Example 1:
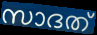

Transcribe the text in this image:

സാദത്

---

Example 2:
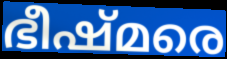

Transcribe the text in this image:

ഭീഷ്മരെ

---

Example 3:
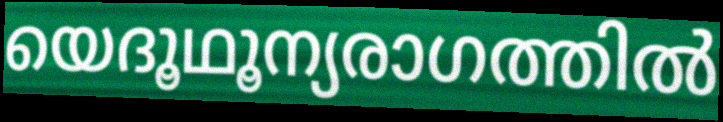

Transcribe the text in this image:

യെദൂഥൂന്യരാഗത്തിൽ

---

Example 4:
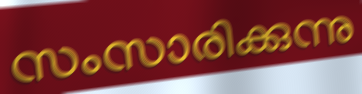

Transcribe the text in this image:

സംസാരിക്കുന്നു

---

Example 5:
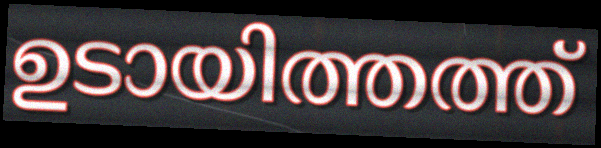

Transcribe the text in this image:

ഉടായിത്തത്ത്